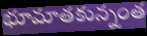
భూమాతకున్నంత